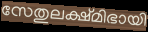
സേതുലക്ഷ്മിഭായി